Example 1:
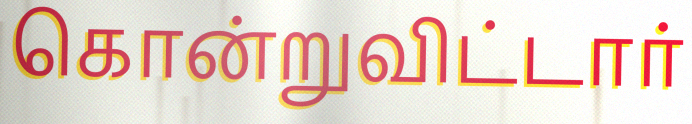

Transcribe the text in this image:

கொன்றுவிட்டார்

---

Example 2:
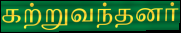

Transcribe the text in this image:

கற்றுவந்தனர்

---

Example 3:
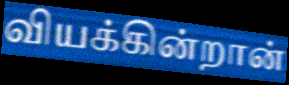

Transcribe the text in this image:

வியக்கின்றான்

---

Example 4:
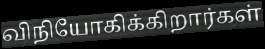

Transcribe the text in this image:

விநியோகிக்கிறார்கள்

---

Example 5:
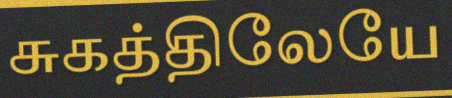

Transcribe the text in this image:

சுகத்திலேயே